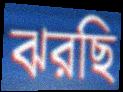
ঝরছি